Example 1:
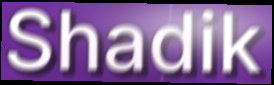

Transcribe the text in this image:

Shadik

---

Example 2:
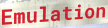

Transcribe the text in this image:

Emulation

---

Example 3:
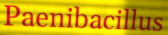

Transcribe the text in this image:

Paenibacillus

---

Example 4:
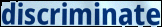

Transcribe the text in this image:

discriminate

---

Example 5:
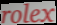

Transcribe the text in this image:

rolex